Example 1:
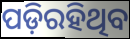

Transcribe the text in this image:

ପଡ଼ିରହିଥିବ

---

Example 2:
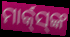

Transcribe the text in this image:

ମାର୍କ୍‌ସ୍‌ଙ୍କ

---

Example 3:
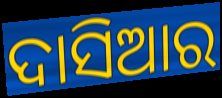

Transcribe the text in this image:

ଦାସିଆର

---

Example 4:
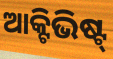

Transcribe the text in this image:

ଆକ୍ଟିଭିଷ୍ଟ୍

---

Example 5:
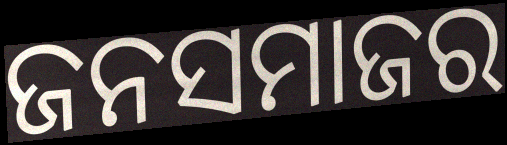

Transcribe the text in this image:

ଜନସମାଜର